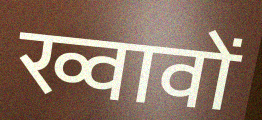
ख्वावों